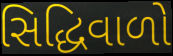
સિદ્ધિવાળો